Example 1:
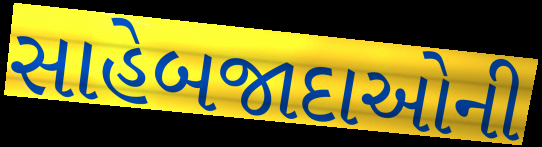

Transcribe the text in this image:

સાહેબજાદાઓની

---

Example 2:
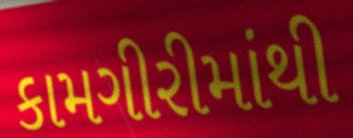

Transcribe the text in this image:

કામગીરીમાંથી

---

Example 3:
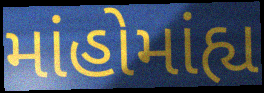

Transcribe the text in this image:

માંહોમાંહ્ય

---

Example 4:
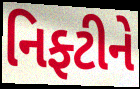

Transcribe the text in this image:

નિફ્ટીને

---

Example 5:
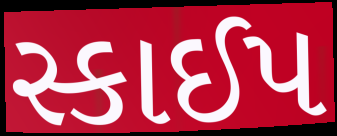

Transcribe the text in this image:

સ્કાઈપ